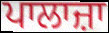
ਪਾਲਾਜ਼ਾ